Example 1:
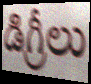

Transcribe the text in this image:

డిగ్రీలు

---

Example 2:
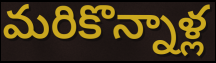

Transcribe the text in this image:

మరికొన్నాళ్ల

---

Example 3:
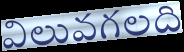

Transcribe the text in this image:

విలువగలది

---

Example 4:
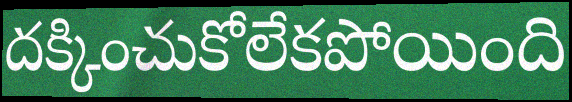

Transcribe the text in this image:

దక్కించుకోలేకపోయింది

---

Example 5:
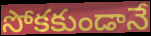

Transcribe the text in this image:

సోకకుండానే